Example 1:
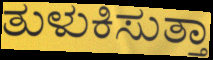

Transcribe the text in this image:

ತುಳುಕಿಸುತ್ತಾ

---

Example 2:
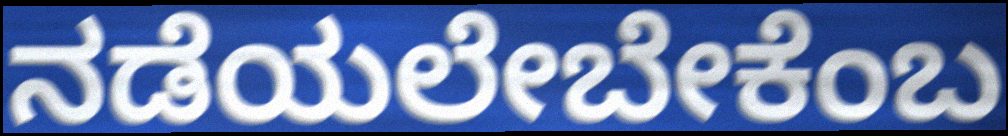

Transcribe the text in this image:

ನಡೆಯಲೇಬೇಕೆಂಬ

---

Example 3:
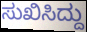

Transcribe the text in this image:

ಸುಖಿಸಿದ್ದು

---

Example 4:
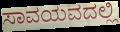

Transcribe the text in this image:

ಸಾವಯವದಲ್ಲಿ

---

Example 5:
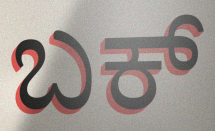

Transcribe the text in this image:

ಬಕ್